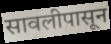
सावलीपासून